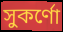
সুকৰ্ণো